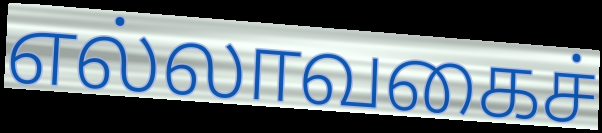
எல்லாவகைச்